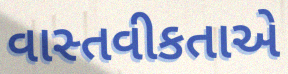
વાસ્તવીકતાએ